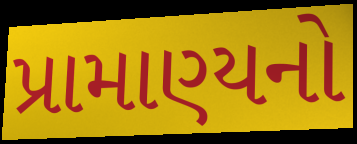
પ્રામાણ્યનો